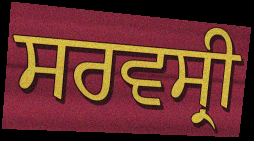
ਸਰਵਸ੍ਰੀ